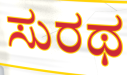
ಸುರಥ